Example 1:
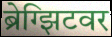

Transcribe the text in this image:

ब्रेग्झिटवर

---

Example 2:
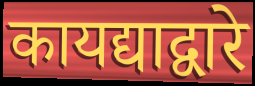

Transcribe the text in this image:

कायद्याद्वारे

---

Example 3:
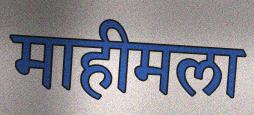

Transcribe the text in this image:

माहीमला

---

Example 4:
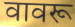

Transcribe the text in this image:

वावरू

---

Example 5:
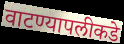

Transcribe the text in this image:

वाटण्यापलीकडे